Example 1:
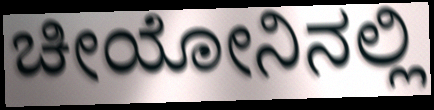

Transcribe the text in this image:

ಚೀಯೋನಿನಲ್ಲಿ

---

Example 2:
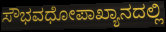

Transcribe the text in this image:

ಸೌಭವಧೋಪಾಖ್ಯಾನದಲ್ಲಿ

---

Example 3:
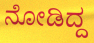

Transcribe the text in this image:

ನೋಡಿದ್ದ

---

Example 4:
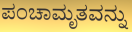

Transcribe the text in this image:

ಪಂಚಾಮೃತವನ್ನು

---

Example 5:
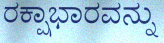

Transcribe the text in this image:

ರಕ್ಷಾಭಾರವನ್ನು